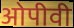
ओपीवी